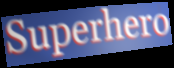
Superhero